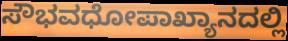
ಸೌಭವಧೋಪಾಖ್ಯಾನದಲ್ಲಿ